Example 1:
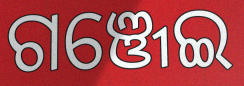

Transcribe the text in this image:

ଗଞ୍ଜେଇ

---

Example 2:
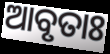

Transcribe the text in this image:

ଆବୃତାଃ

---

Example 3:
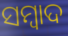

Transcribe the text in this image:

ସମ୍ବାଦ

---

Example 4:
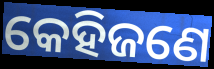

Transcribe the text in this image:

କେହିଜଣେ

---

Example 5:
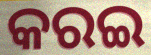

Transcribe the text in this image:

କରଇ